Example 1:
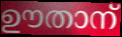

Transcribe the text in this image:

ഊതാന്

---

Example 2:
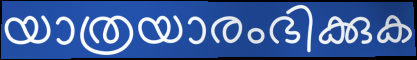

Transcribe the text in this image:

യാത്രയാരംഭിക്കുക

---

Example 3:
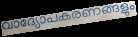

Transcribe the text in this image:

വാദ്യോപകരണങ്ങളും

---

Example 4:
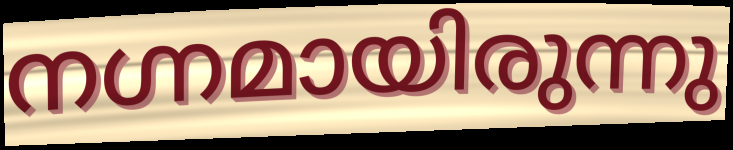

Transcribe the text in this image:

നഗ്നമായിരുന്നു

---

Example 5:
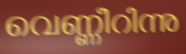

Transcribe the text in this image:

വെണ്ണീറിന്നു